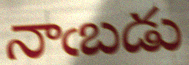
నాఁబడు